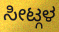
ಸೀಟ್ಗಳ